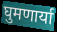
घुमणार्या